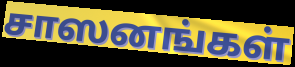
சாஸனங்கள்